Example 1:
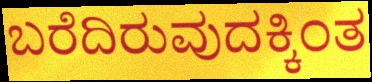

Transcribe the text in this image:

ಬರೆದಿರುವುದಕ್ಕಿಂತ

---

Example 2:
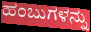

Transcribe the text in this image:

ಹಂಬುಗಳನ್ನು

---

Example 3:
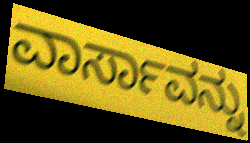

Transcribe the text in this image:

ವಾರ್ಸಾವನ್ನು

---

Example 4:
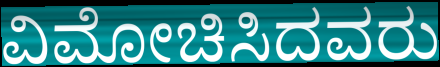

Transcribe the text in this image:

ವಿಮೋಚಿಸಿದವರು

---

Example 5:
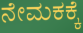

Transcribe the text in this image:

ನೇಮಕಕ್ಕೆ